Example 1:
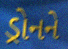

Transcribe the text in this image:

ડ્રોનને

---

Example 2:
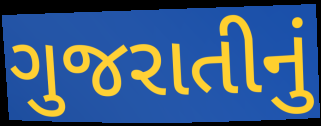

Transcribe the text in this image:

ગુજરાતીનું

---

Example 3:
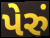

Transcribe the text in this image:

પેરું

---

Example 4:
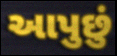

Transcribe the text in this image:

આપુછું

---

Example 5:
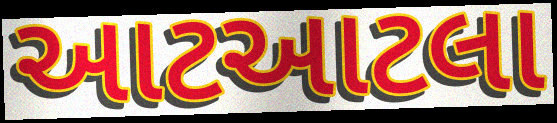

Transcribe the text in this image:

આટઆટલા